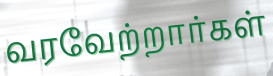
வரவேற்றார்கள்